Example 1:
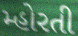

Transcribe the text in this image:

મ્હોરતી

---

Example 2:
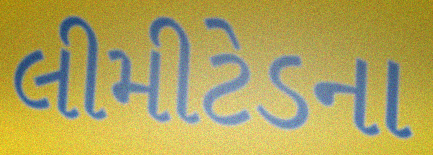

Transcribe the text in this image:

લીમીટેડના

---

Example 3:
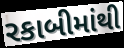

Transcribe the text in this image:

રકાબીમાંથી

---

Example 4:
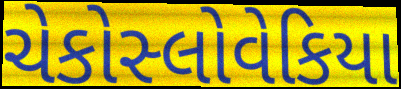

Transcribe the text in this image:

ચેકોસ્લોવેકિયા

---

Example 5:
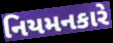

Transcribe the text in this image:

નિયમનકારે